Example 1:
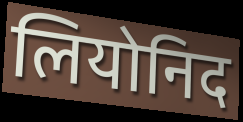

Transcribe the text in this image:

लियोनिद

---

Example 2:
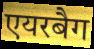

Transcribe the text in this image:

एयरबैग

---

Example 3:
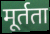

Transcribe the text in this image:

मूर्तता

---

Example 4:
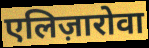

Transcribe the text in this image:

एलिज़ारोवा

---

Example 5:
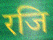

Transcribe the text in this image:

रजि